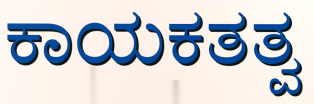
ಕಾಯಕತತ್ವ